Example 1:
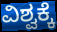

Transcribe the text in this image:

ವಿಶ್ವಕ್ಕೆ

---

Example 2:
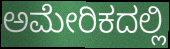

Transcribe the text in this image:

ಅಮೇರಿಕದಲ್ಲಿ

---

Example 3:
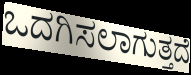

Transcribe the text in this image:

ಒದಗಿಸಲಾಗುತ್ತದೆ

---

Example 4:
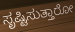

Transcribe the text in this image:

ಸೃಷ್ಟಿಸುತ್ತಾರೋ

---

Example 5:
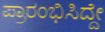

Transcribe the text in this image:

ಪ್ರಾರಂಭಿಸಿದ್ದೇ